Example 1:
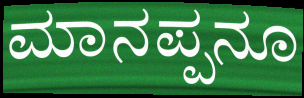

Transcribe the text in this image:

ಮಾನಪ್ಪನೂ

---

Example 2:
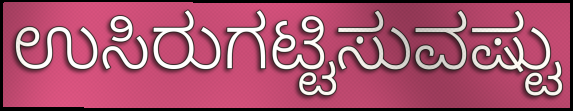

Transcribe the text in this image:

ಉಸಿರುಗಟ್ಟಿಸುವಷ್ಟು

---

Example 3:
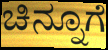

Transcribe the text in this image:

ಚಿನ್ನೂಗೆ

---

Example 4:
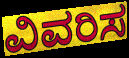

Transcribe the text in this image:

ವಿವರಿಸ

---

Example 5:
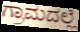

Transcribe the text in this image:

ಗ್ರಾಮದಲ್ಲೆ